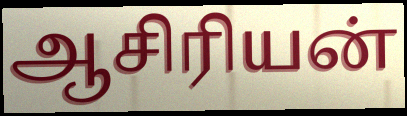
ஆசிரியன்